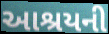
આશ્રયની